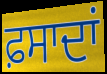
ਫ਼ਸਾਦਾਂ